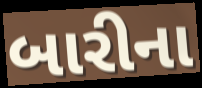
બારીના